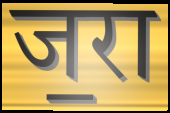
ज॒रा